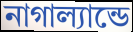
নাগাল্যান্ডে